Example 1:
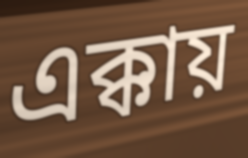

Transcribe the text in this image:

এক্কায়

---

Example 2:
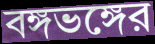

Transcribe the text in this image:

বঙ্গভঙ্গের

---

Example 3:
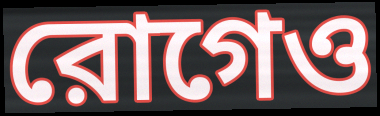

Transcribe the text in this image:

রোগেও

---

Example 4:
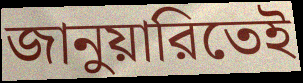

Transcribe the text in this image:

জানুয়ারিতেই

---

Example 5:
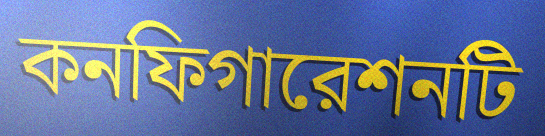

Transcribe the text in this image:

কনফিগারেশনটি